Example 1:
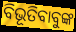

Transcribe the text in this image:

ବିଭୂତିବାବୁଙ୍କ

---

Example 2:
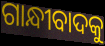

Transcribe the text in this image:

ଗାନ୍ଧୀବାଦକୁ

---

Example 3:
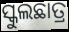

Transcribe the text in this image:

ସ୍କୁଲଛାତ୍ର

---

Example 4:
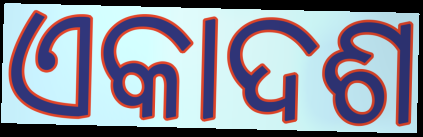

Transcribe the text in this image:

ଏକାଦଶ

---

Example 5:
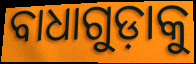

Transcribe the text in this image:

ବାଧାଗୁଡ଼ାକୁ